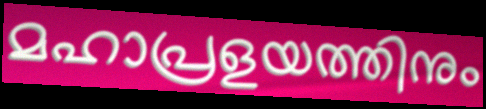
മഹാപ്രളയത്തിനും